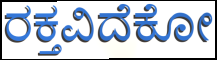
ರಕ್ತವಿದೆಕೋ